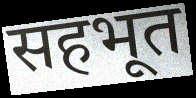
सहभूत